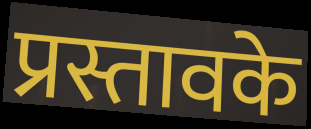
प्रस्तावके